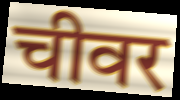
चीवर